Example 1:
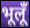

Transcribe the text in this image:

भूलूँ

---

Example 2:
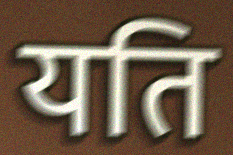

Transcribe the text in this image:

यति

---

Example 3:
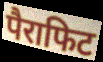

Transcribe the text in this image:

पैराफिट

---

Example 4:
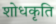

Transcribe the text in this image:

शोधकृति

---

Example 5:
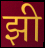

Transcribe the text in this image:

झी